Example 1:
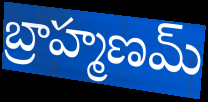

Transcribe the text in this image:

బ్రాహ్మణమ్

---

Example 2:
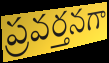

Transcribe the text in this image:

ప్రవర్తనగా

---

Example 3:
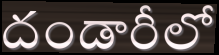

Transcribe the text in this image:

దండారీలో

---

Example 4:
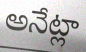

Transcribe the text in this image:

అనేట్లా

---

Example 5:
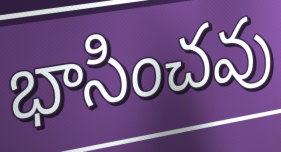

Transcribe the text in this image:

భాసించవు